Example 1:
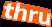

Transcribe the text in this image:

thru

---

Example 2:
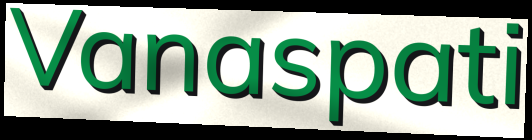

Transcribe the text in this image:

Vanaspati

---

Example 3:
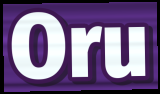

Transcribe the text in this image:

Oru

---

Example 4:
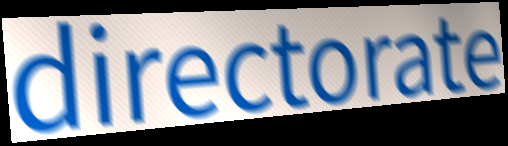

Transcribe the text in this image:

directorate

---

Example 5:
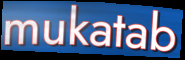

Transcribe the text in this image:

mukatab